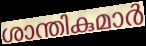
ശാന്തികുമാർ